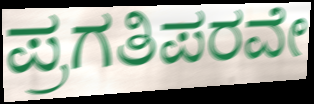
ಪ್ರಗತಿಪರವೇ